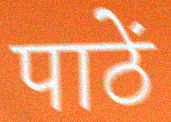
पाठें